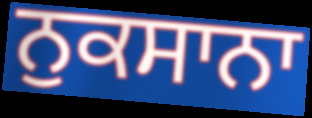
ਨੁਕਸਾਨਾ